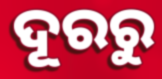
ଦୂରରୁ